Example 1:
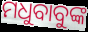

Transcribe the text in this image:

ମଧୁବାବୁଙ୍କ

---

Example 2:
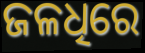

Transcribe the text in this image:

ଜଳଧିରେ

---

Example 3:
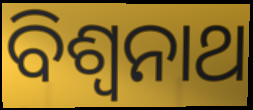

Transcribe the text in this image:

ବିଶ୍ଵନାଥ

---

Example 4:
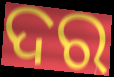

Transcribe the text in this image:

ଦର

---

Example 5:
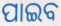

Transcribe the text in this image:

ପାଇବ